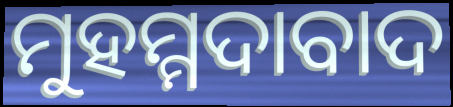
ମୁହମ୍ମଦାବାଦ